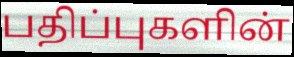
பதிப்புகளின்